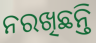
ନରଖିଛନ୍ତି